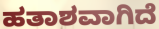
ಹತಾಶವಾಗಿದೆ